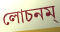
লোচনম্